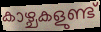
കാഴ്ചകളുണ്ട്